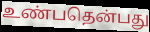
உண்பதென்பது